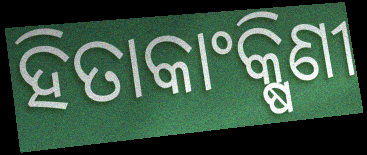
ହିତାକାଂକ୍ଷିଣୀ